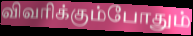
விவரிக்கும்போதும்